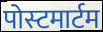
पोस्‍टमार्टम